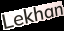
Lekhan